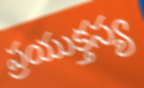
ప్రయుక్తస్య